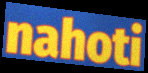
nahoti